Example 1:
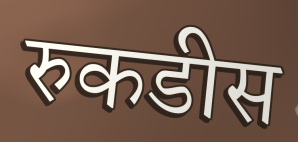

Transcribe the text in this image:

रुकडीस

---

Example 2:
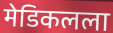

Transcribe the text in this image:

मेडिकलला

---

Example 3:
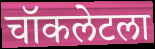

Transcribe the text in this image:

चॉकलेटला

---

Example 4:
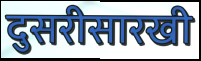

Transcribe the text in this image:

दुसरीसारखी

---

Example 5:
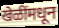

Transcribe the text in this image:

खेळींमधून